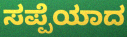
ಸಪ್ಪೆಯಾದ